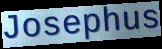
Josephus